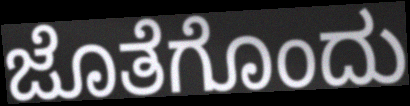
ಜೊತೆಗೊಂದು